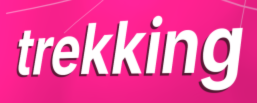
trekking